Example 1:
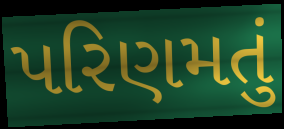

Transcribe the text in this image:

પરિણમતું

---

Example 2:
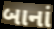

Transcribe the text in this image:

બાનાં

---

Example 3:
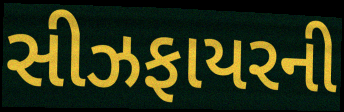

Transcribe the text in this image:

સીઝફાયરની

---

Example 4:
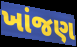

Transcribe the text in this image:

ખાંજણ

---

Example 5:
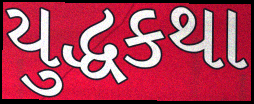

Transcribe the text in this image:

યુદ્ધકથા